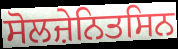
ਸੋਲਜ਼ੇਨਿਤਸਿਨ